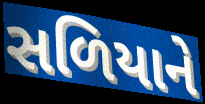
સળિયાને